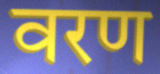
वरण